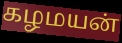
கழமயன்